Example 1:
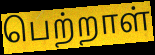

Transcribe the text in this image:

பெற்றாள்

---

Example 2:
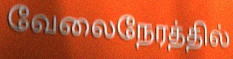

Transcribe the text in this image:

வேலைநேரத்தில்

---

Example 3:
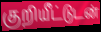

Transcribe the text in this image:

குறியீட்டுடன்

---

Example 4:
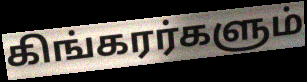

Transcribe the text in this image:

கிங்கரர்களும்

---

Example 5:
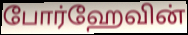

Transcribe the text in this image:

போர்ஹேவின்